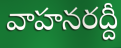
వాహనరద్దీ